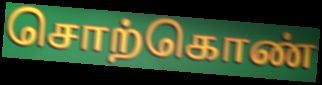
சொற்கொண்